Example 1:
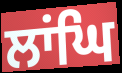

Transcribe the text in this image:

ਲਾਂਘਿ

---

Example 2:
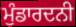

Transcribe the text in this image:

ਮੁੰਡਾਰਦਨੀ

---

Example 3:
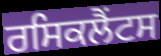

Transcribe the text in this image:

ਰਸਿਕਲੈਂਟਸ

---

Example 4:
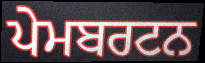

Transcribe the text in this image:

ਪੇਮਬਰਟਨ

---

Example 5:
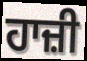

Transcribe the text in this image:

ਹਾਜ਼ੀ